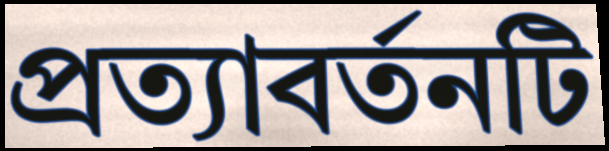
প্রত্যাবর্তনটি